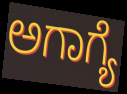
ಅಗಾಗ್ಯೆ